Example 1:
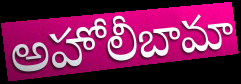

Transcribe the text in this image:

అహోలీబామా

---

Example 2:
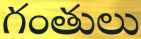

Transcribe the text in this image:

గంతులు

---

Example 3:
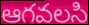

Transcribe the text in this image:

ఆగవలసి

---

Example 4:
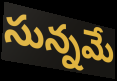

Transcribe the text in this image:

సున్నమే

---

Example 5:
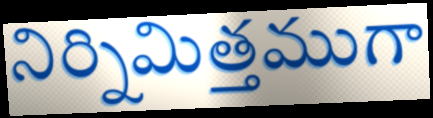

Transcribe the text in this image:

నిర్నిమిత్తముగా